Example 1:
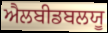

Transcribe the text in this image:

ਐਲਬੀਡਬਲਯੂ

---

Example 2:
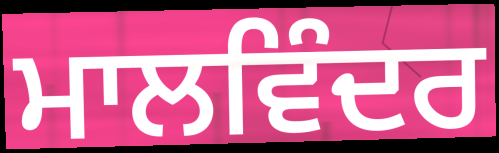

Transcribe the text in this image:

ਮਾਲਵਿੰਦਰ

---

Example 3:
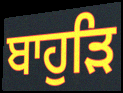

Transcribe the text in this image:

ਬਾਹੁੜਿ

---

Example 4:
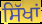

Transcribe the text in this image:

ਸਿੱਖਾਂ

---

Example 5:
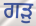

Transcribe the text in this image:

ਗੜੁ